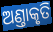
ଅଣ୍ତାକୃତି